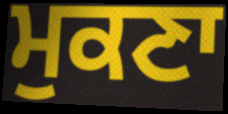
ਮੁਕਣਾ